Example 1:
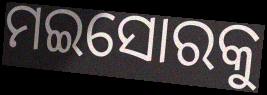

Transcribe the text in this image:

ମଇସୋରକୁ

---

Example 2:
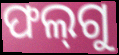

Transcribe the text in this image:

ଫଲ୍‌ଗୁ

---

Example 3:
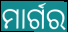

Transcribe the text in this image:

ମାର୍ଗର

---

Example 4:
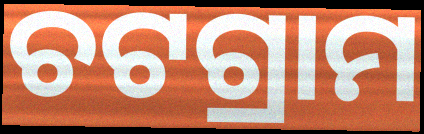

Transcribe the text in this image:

ଚଟଗ୍ରାମ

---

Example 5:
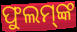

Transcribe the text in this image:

ଫୁଲମ୍‌ଙ୍କ